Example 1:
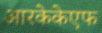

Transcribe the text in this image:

आरकेकेएफ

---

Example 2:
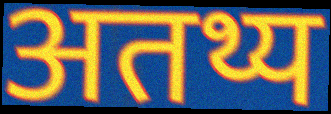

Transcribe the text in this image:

अतथ्य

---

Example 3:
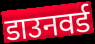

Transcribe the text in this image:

डाउनवर्ड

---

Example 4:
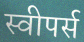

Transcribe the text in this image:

स्वीपर्स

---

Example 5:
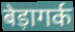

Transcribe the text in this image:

बेड़ागर्क